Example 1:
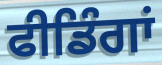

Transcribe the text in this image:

ਫੀਡਿੰਗਾਂ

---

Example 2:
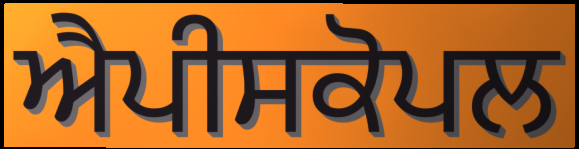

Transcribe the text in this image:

ਐਪੀਸਕੋਪਲ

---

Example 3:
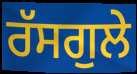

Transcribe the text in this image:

ਰੱਸਗੁਲੇ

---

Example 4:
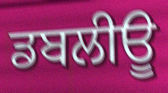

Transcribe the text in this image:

ਡਬਲੀਊ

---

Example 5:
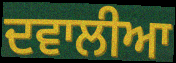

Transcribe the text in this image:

ਦਵਾਲੀਆ